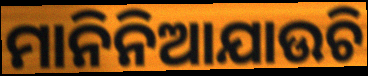
ମାନିନିଆଯାଉଚି